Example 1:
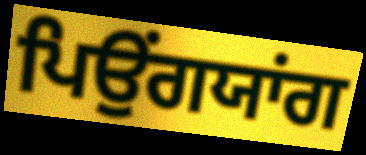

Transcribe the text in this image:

ਪਿਉਂਗਯਾਂਗ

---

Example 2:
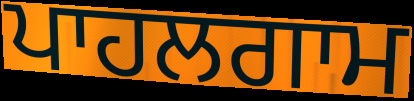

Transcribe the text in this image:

ਪਾਹਲਗਾਮ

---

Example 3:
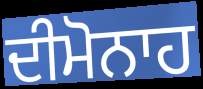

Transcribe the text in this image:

ਦੀਮੋਨਾਹ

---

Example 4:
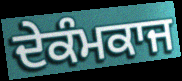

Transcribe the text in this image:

ਦੇਕੰਮਕਾਜ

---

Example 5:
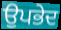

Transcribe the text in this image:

ਉਪਭੇਦ